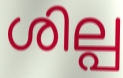
ശില്പ